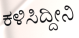
ಕಳಿಸಿದ್ದೀನಿ